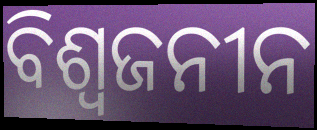
ବିଶ୍ବଜନୀନ